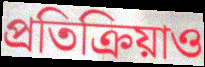
প্রতিক্রিয়াও